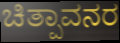
ಚಿತ್ಪಾವನರ